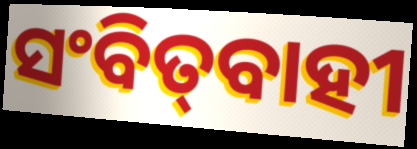
ସଂବିତ୍‌ବାହୀ